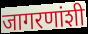
जागरणांशी